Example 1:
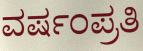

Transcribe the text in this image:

ವರ್ಷಂಪ್ರತಿ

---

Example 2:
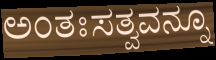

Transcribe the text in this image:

ಅಂತಃಸತ್ವವನ್ನೂ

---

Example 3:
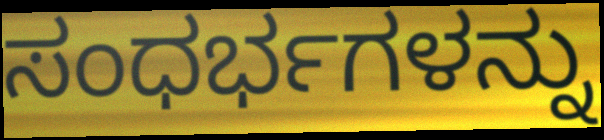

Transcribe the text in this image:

ಸಂಧರ್ಭಗಳನ್ನು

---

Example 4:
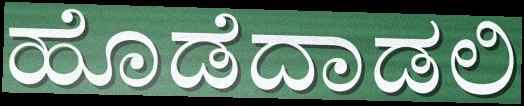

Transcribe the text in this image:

ಹೊಡೆದಾಡಲಿ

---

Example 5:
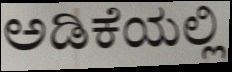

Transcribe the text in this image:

ಅಡಿಕೆಯಲ್ಲಿ